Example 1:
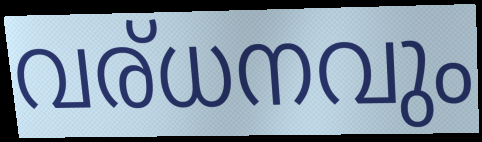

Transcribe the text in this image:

വര്ധനവും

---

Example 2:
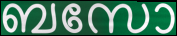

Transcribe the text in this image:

ബസോ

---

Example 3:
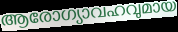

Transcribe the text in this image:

ആരോഗ്യാവഹവുമായ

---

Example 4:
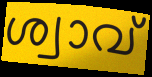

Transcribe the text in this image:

ശ്വാവ്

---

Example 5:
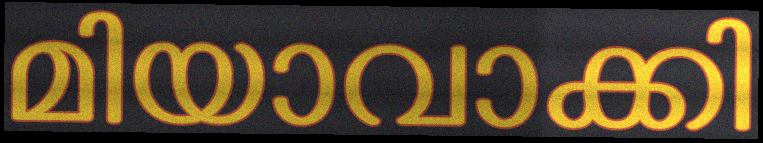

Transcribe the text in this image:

മിയാവാക്കി